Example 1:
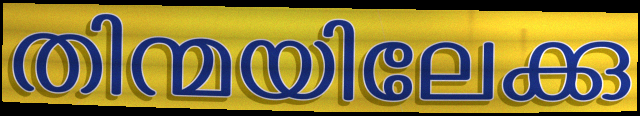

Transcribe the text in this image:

തിന്മയിലേക്കു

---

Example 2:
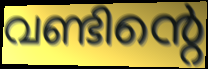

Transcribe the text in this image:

വണ്ടിന്റെ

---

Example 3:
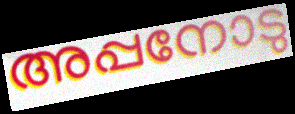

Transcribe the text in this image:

അപ്പനോടു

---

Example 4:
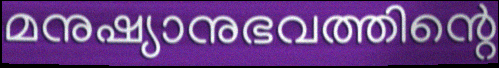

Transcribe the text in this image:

മനുഷ്യാനുഭവത്തിന്റെ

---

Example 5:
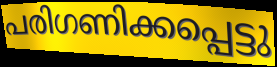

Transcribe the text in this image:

പരിഗണിക്കപ്പെട്ടു